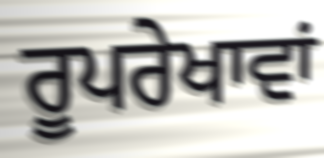
ਰੂਪਰੇਖਾਵਾਂ